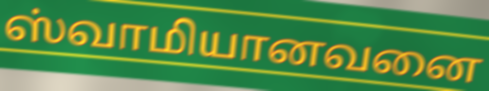
ஸ்வாமியானவனை